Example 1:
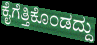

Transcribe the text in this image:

ಕೈಗೆತ್ತಿಕೊಂಡದ್ದು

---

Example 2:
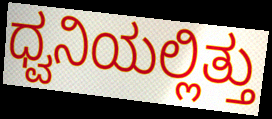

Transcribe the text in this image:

ಧ್ವನಿಯಲ್ಲಿತ್ತು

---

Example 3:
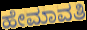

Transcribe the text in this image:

ಹೇಮಾವತಿ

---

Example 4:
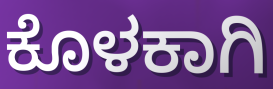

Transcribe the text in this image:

ಕೊಳಕಾಗಿ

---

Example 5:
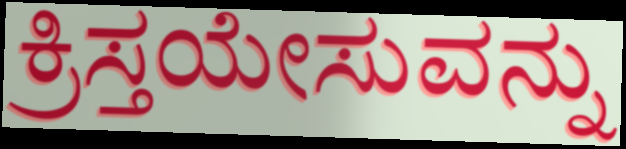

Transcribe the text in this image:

ಕ್ರಿಸ್ತಯೇಸುವನ್ನು